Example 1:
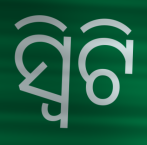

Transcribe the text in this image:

ସ୍ୱିଟି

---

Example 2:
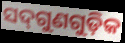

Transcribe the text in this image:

ସଦ୍‌ଗୁଣଗୁଡ଼ିକ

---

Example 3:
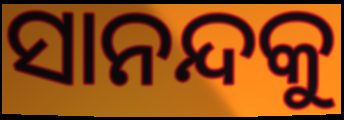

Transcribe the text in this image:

ସାନନ୍ଦକୁ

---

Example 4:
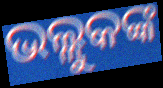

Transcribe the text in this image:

ଭଲ୍ଲୁକଙ୍କ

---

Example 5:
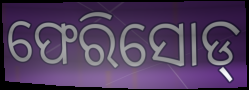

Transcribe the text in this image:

ଫେରିସୋଡ୍